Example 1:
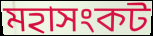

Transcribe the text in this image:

মহাসংকট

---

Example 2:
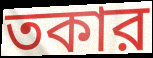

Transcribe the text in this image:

তকার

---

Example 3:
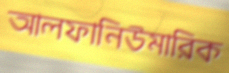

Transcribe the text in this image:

আলফানিউমারিক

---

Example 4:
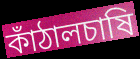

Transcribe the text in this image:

কাঁঠালচাষি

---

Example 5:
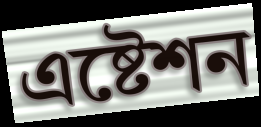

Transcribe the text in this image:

এষ্টেশন